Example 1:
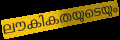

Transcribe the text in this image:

ലൗകികതയുടെയും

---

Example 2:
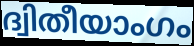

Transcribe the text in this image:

ദ്വിതീയാംഗം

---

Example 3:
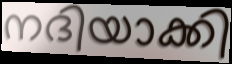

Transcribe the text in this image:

നദിയാക്കി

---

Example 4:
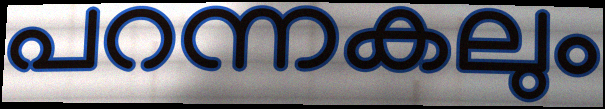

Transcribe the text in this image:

പറന്നകലും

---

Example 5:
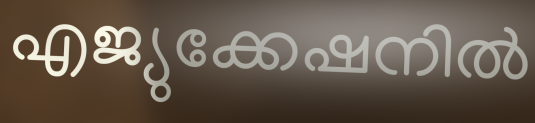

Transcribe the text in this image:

എജ്യുക്കേഷനിൽ